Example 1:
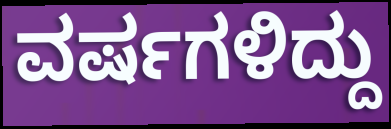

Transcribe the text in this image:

ವರ್ಷಗಳಿದ್ದು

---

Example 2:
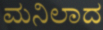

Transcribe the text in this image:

ಮನಿಲಾದ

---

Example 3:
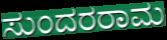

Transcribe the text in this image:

ಸುಂದರರಾಮ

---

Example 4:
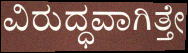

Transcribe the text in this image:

ವಿರುದ್ಧವಾಗಿತ್ತೇ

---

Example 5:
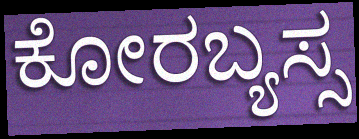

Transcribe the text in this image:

ಕೋರಬ್ಯಸ್ಸ